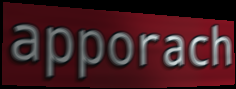
apporach